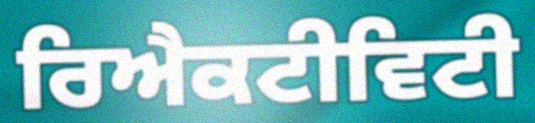
ਰਿਐਕਟੀਵਿਟੀ